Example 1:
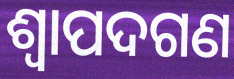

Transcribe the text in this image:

ଶ୍ୱାପଦଗଣ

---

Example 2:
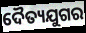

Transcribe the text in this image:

ଦୈତ୍ୟଯୁଗର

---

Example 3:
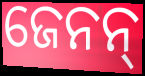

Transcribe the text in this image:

ଜେନନ୍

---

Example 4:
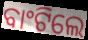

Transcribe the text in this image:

ବାଂଟିଲେ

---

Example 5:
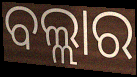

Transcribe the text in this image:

ବଲ୍ଲାର